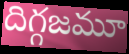
దిగ్గజమూ